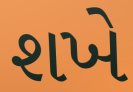
શખે